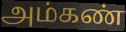
அம்கண்